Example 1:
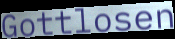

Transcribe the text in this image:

Gottlosen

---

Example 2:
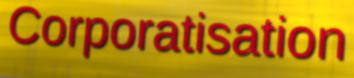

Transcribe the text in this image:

Corporatisation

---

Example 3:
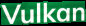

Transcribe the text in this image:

Vulkan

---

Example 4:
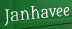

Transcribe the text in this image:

Janhavee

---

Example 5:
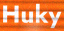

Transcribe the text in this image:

Huky